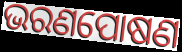
ଭରଣପୋଷଣ